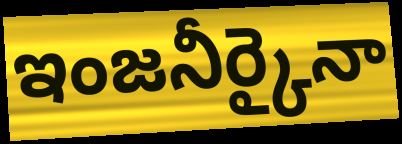
ఇంజనీర్కైనా